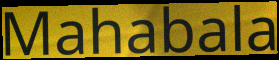
Mahabala